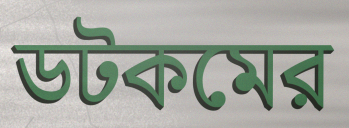
ডটকমের